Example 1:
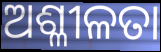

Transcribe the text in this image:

ଅଶ୍ଳୀଳତା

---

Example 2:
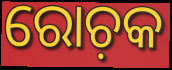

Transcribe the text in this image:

ରୋଚ଼କ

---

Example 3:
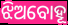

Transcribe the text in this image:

ଝିଅବୋହୂ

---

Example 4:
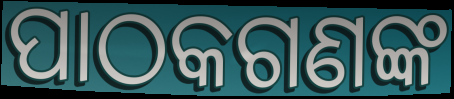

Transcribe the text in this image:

ପାଠକଗଣଙ୍କ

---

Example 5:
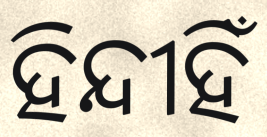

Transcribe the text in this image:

ହିନ୍ଦୀହିଁ